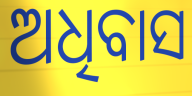
ଅଧିବାସ